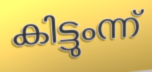
കിട്ടുംന്ന്